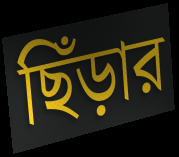
ছিঁড়ার